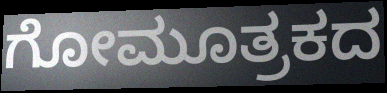
ಗೋಮೂತ್ರಕದ